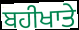
ਬਹੀਖਾਤੇ